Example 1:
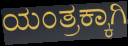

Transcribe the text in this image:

ಯಂತ್ರಕ್ಕಾಗಿ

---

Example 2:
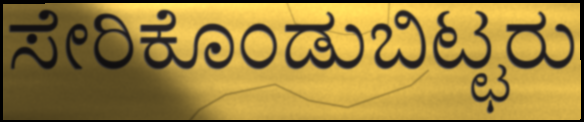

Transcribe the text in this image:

ಸೇರಿಕೊಂಡುಬಿಟ್ಟರು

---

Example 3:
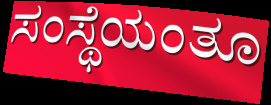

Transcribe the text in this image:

ಸಂಸ್ಥೆಯಂತೂ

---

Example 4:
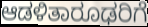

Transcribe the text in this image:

ಆಡಳಿತಾರೂಢರಿಗೆ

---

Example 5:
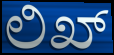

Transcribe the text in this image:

ಲಿಖ್